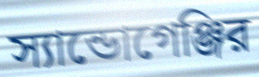
স্যান্ডোগেঞ্জির